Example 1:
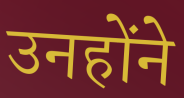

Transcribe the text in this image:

उनहोंने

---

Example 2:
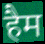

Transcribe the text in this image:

हैम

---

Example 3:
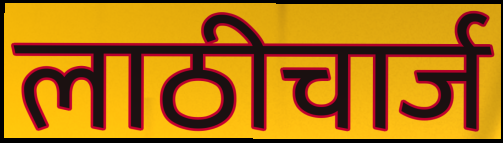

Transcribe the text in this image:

लाठीचार्ज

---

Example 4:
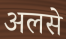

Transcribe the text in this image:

अलसे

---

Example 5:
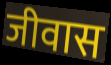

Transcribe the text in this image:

जीवास